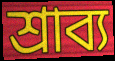
শ্রাব্য